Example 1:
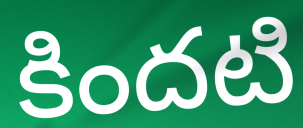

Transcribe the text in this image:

కిందటి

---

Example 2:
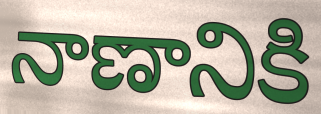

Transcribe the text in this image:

నాణానికి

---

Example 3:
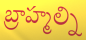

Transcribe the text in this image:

బ్రాహ్మల్ని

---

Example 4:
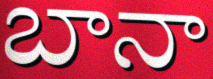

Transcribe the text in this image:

బానా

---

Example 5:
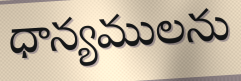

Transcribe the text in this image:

ధాన్యములను